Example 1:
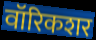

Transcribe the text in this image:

वॉरिकशर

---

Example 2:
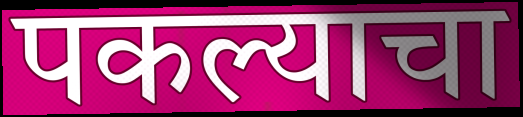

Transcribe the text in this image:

पकल्याचा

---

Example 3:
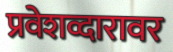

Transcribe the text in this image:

प्रवेशव्दारावर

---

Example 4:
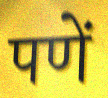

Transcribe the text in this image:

पणें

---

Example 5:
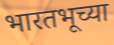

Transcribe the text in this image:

भारतभूच्या